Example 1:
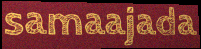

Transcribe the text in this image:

samaajada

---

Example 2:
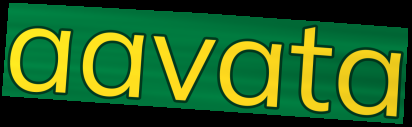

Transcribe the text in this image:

aavata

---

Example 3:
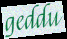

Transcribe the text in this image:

geddu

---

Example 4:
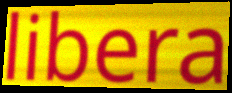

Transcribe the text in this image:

libera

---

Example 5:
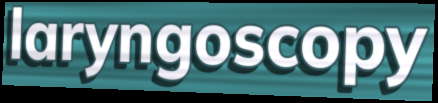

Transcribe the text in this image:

laryngoscopy